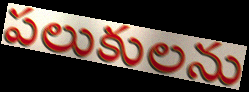
పలుకులను